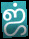
ஜ்